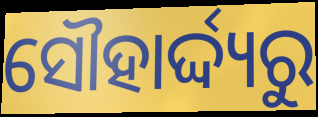
ସୌହାର୍ଦ୍ଦ୍ୟରୁ